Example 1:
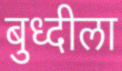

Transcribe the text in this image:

बुध्दीला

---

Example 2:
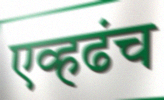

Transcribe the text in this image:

एव्हढंच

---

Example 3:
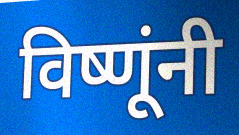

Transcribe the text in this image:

विष्णूंनी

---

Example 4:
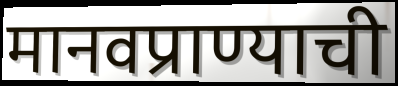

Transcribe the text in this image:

मानवप्राण्याची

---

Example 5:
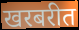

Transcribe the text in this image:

खरबरीत